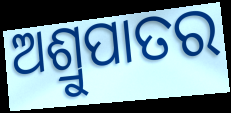
ଅଶ୍ରୁପାତର